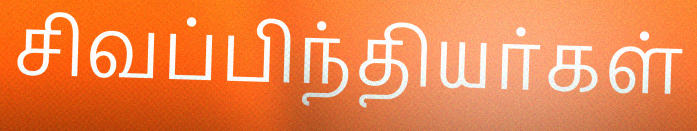
சிவப்பிந்தியர்கள்